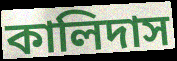
কালিদাস